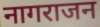
नागराजन